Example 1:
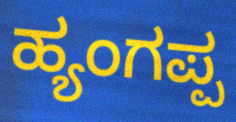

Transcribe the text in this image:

ಹ್ಯಂಗಪ್ಪ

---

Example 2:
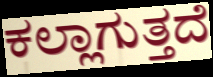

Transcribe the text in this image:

ಕಲ್ಲಾಗುತ್ತದೆ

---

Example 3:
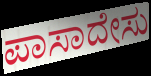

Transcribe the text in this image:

ಪಾಸಾದೇಸು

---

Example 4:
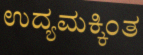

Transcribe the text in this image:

ಉದ್ಯಮಕ್ಕಿಂತ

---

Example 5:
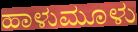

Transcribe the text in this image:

ಹಾಳುಮೂಳು